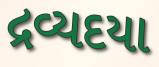
દ્રવ્યદયા